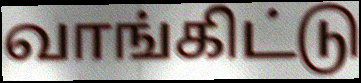
வாங்கிட்டு